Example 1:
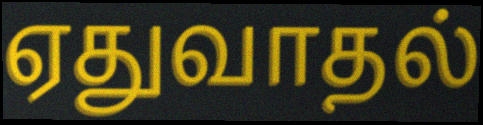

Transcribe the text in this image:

ஏதுவாதல்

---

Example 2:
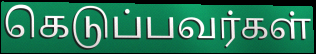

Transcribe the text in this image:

கெடுப்பவர்கள்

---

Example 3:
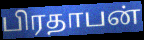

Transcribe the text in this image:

பிரதாபன்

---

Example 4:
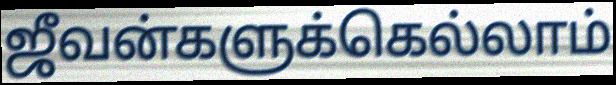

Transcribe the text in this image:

ஜீவன்களுக்கெல்லாம்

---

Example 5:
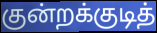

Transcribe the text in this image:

குன்றக்குடித்